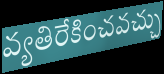
వ్యతిరేకించవచ్చు